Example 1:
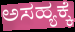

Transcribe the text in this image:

ಅಸಹ್ಯಕ್ಕೆ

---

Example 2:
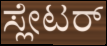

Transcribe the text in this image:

ಸ್ಲೇಟರ್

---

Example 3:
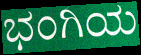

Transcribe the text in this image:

ಭಂಗಿಯ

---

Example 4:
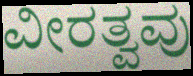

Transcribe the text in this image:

ವೀರತ್ವವು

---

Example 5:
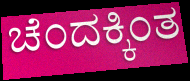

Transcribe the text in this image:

ಚೆಂದಕ್ಕಿಂತ